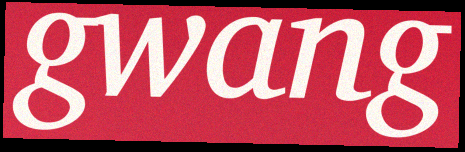
gwang